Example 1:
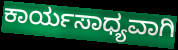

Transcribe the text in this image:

ಕಾರ್ಯಸಾಧ್ಯವಾಗಿ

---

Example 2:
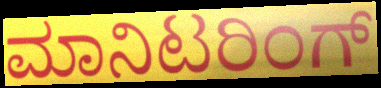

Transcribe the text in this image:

ಮಾನಿಟರಿಂಗ್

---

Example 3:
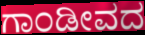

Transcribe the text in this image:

ಗಾಂಡೀವದ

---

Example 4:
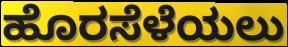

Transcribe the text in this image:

ಹೊರಸೆಳೆಯಲು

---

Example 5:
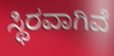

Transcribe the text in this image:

ಸ್ಥಿರವಾಗಿವೆ